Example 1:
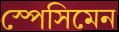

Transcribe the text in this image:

স্পেসিমেন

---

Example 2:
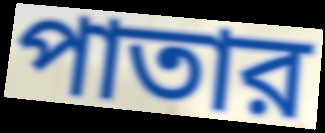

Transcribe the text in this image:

পাতার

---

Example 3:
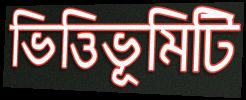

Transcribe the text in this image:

ভিত্তিভূমিটি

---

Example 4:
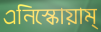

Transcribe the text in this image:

এনিস্কোয়াম্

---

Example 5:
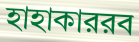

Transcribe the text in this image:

হাহাকাররব